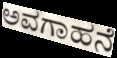
ಅವಗಾಹನೆ